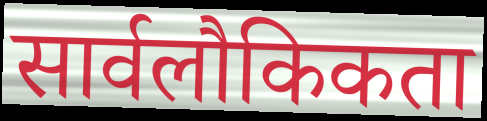
सार्वलौकिकता